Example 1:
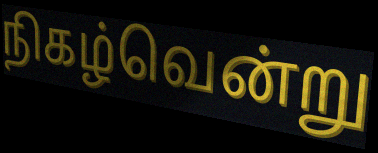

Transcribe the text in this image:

நிகழ்வென்று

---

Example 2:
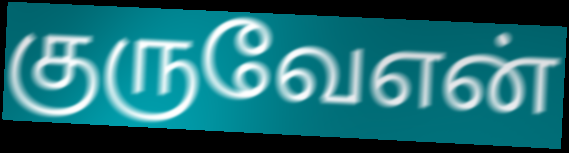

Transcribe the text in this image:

குருவேஎன்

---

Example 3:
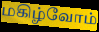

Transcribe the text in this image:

மகிழ்வோம்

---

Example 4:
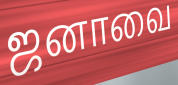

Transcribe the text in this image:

ஜனாவை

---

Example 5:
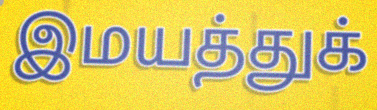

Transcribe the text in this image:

இமயத்துக்